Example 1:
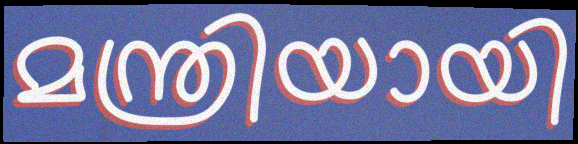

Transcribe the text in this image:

മന്ത്രിയായി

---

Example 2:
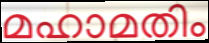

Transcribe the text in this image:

മഹാമതിം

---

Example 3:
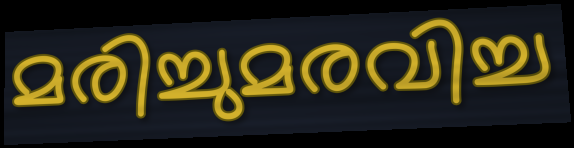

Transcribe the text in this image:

മരിച്ചുമരവിച്ച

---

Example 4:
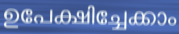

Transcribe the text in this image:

ഉപേക്ഷിച്ചേക്കാം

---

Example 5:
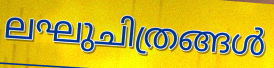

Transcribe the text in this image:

ലഘുചിത്രങ്ങൾ